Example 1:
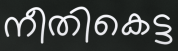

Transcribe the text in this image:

നീതികെട്ട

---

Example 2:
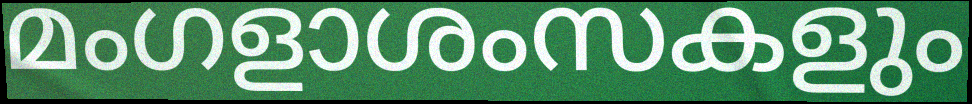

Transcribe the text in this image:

മംഗളാശംസകളും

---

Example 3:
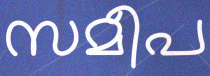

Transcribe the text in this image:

സമീപ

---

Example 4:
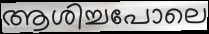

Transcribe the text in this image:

ആശിച്ചപോലെ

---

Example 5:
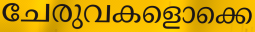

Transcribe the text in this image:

ചേരുവകളൊക്കെ